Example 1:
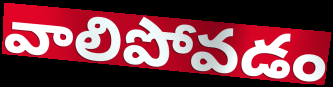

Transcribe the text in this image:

వాలిపోవడం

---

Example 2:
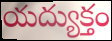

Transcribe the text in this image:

యద్యుక్తం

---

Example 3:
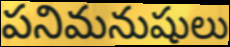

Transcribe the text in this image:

పనిమనుషులు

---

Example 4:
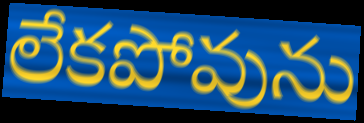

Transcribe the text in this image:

లేకపోవును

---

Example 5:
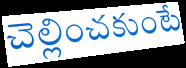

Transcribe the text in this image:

చెల్లించకుంటే